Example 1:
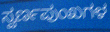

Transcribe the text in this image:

ಸ್ವರ್ಣಪುಂಖಗಳ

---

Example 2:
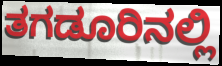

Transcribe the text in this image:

ತಗಡೂರಿನಲ್ಲಿ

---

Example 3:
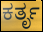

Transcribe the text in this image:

ಕರ್ತೃ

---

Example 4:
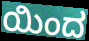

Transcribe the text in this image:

ಯಿಂದ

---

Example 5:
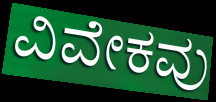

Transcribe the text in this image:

ವಿವೇಕವು